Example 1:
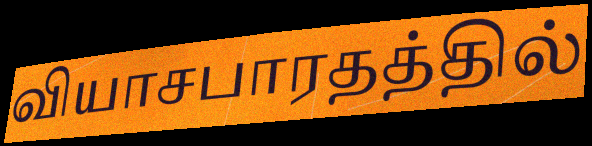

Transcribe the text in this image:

வியாசபாரதத்தில்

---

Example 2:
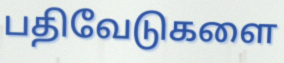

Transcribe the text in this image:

பதிவேடுகளை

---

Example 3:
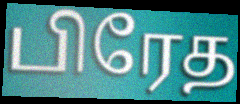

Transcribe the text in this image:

பிரேத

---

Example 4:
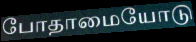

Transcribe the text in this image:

போதாமையோடு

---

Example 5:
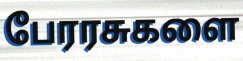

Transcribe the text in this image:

பேரரசுகளை